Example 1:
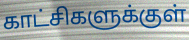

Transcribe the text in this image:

காட்சிகளுக்குள்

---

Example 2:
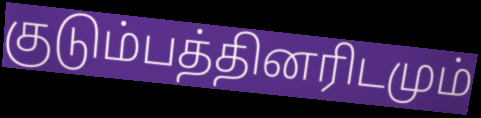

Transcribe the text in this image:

குடும்பத்தினரிடமும்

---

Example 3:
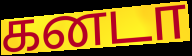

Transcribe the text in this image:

கனடா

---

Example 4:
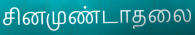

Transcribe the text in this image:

சினமுண்டாதலை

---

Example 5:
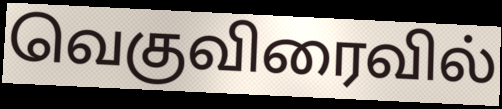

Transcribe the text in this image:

வெகுவிரைவில்